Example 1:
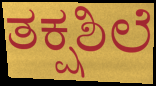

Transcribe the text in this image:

ತಕ್ಷಶಿಲೆ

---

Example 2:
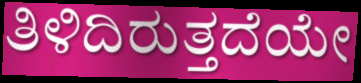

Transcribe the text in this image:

ತಿಳಿದಿರುತ್ತದೆಯೇ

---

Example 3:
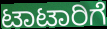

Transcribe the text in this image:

ಟಾಟಾರಿಗೆ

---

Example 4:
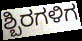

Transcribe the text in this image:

ಶ್ಬಿರಗಳಿಗ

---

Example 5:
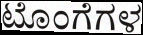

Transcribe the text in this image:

ಟೊಂಗೆಗಳ